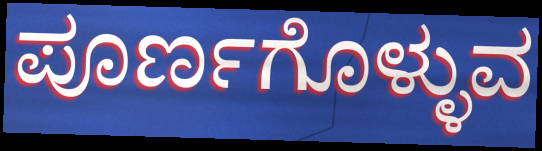
ಪೂರ್ಣಗೊಳ್ಳುವ